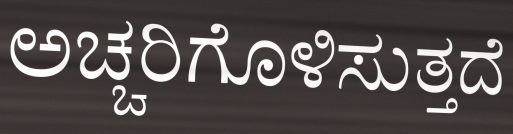
ಅಚ್ಚರಿಗೊಳಿಸುತ್ತದೆ